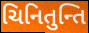
ચિનિતુન્તિ